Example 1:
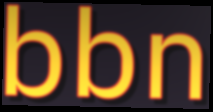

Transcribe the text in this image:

bbn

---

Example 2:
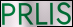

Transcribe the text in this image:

PRLIS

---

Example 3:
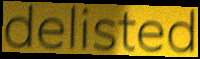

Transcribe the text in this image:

delisted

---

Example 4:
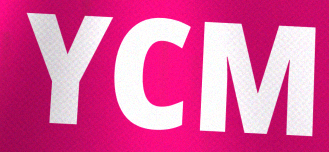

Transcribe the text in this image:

YCM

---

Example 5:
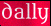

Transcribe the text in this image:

dally